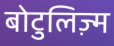
बोटुलिज़्म